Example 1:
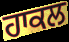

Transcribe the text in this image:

ਹਾਕਲ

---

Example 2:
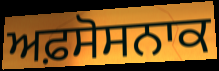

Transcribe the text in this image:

ਅਫ਼ਸੋਸਨਾਕ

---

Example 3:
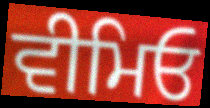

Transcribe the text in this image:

ਵੀਮਿਓ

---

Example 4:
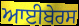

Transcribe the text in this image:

ਆਈਬੇਰਸ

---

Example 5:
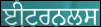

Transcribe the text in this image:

ਈਟਰਨਲਸ